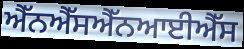
ਐੱਨਐੱਸਐੱਨਆਈਐੱਸ